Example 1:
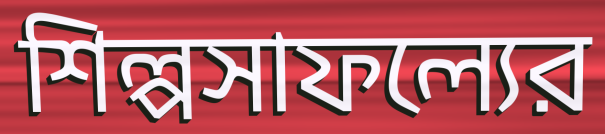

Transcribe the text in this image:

শিল্পসাফল্যের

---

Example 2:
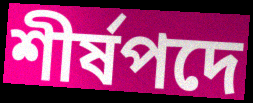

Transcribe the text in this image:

শীর্ষপদে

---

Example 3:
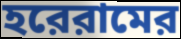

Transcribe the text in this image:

হরেরামের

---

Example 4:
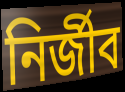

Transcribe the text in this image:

নির্জীব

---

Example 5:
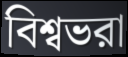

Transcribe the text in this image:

বিশ্বভরা